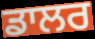
ਡਾਲਰ